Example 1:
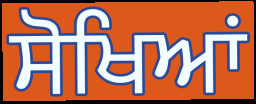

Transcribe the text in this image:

ਸੋਖਿਆਂ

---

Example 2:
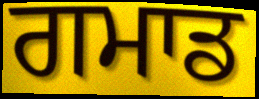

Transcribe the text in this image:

ਗਮਾਡ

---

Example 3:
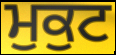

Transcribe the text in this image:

ਮੁਕੁਟ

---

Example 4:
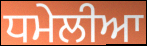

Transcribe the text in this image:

ਧਮੇਲੀਆ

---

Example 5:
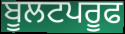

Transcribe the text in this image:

ਬੂਲਟਪਰੂਫ